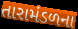
તારામંડળના